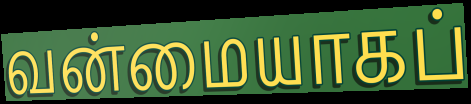
வன்மையாகப்